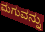
ಮಗುವನ್ನು